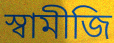
স্বামীজি